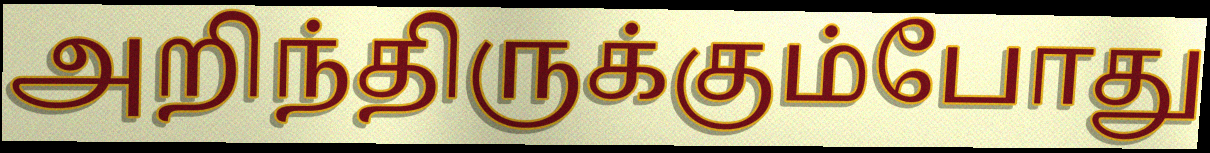
அறிந்திருக்கும்போது